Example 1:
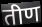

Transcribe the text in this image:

तीण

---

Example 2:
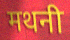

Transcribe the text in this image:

मथनी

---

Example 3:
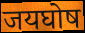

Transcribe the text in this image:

जयघोष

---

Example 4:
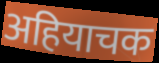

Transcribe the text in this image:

अहियाचक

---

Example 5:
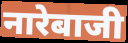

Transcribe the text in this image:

नारेबाजी